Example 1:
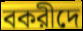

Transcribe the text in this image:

বকরীদে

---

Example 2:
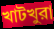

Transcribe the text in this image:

খাটখুরা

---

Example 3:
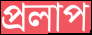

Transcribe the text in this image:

প্রলাপ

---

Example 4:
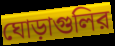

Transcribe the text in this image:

ঘোড়াগুলির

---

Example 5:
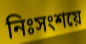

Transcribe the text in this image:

নিঃসংশয়ে